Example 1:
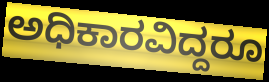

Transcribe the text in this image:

ಅಧಿಕಾರವಿದ್ದರೂ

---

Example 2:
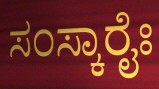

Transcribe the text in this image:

ಸಂಸ್ಕಾರೈಃ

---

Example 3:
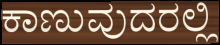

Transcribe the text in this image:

ಕಾಣುವುದರಲ್ಲಿ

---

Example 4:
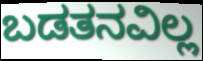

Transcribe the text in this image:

ಬಡತನವಿಲ್ಲ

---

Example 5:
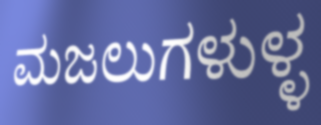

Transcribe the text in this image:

ಮಜಲುಗಳುಳ್ಳ